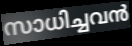
സാധിച്ചവൻ